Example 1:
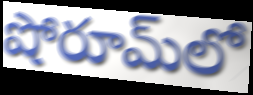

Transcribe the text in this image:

షోరూమ్‌లో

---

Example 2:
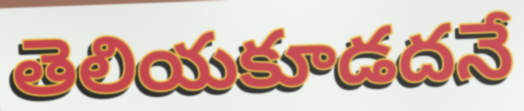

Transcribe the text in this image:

తెలియకూడదనే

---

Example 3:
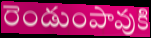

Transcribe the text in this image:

రెండుంపావుకి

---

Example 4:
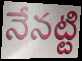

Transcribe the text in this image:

నేనట్టి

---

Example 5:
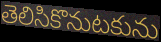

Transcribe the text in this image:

తెలిసికొనుటకును